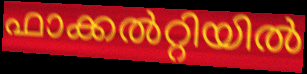
ഫാക്കൽറ്റിയിൽ